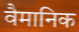
वैमानिक